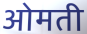
ओमती